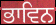
ਭਾਵਿਨ